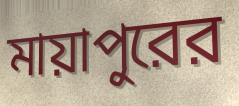
মায়াপুরের